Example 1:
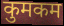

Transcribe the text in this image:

कुमकम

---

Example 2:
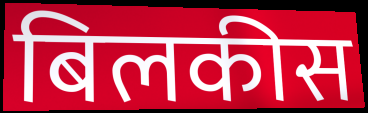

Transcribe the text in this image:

बिलकीस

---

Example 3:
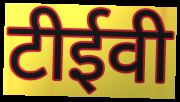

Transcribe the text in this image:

टीईवी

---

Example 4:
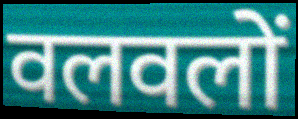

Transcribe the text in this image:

वलवलों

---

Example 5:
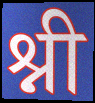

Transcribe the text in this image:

श्नी